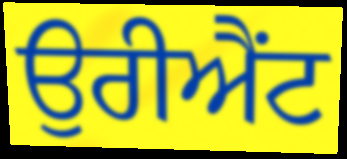
ਉਰੀਐਂਟ